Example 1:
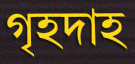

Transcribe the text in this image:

গৃহদাহ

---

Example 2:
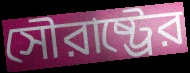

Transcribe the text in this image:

সৌরাষ্ট্রের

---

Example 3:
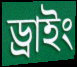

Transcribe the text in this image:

ড্রাইং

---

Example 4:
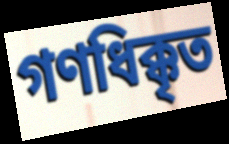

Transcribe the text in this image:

গণধিক্কৃত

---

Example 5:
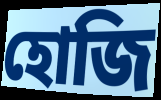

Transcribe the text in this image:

হোজি